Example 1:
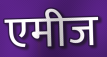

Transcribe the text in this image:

एमीज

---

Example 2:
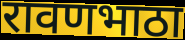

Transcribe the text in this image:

रावणभाठा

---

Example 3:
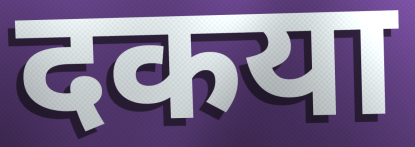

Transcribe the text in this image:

दकया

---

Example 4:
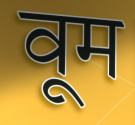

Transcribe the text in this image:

वूम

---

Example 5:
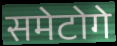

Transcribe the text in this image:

समेटोगे